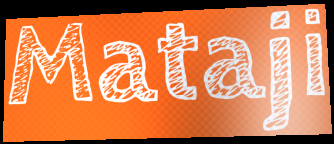
Mataji